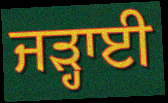
ਜੜ੍ਹਾਈ